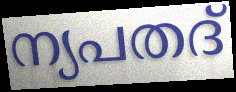
ന്യപതദ്